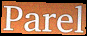
Parel